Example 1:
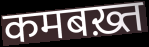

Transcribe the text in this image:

कमबख़्त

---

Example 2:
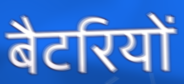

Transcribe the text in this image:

बैटरियों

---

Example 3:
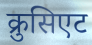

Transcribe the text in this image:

क्रुसिएट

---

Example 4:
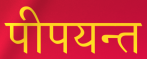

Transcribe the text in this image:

पीपयन्त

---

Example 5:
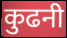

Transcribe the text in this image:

कुढनी